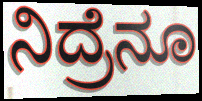
ನಿದ್ರೆನೂ